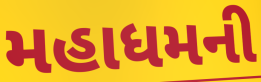
મહાધમની